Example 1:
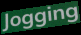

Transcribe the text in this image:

Jogging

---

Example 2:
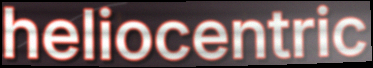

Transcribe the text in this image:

heliocentric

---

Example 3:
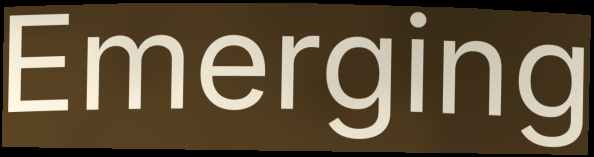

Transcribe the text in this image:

Emerging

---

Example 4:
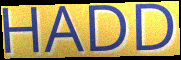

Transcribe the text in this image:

HADD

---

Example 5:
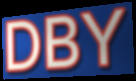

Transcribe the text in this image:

DBY